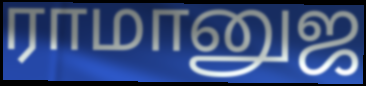
ராமானுஜ